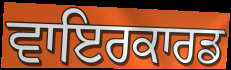
ਵਾਇਰਕਾਰਡ